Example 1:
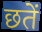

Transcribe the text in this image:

छतें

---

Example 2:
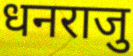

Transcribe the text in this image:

धनराजु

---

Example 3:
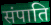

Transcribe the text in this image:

संपाति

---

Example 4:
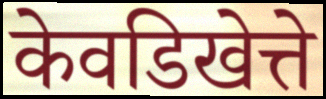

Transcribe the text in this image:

केवडिखेत्ते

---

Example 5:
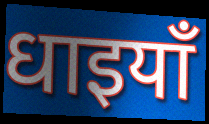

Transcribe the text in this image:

धाइयाँ